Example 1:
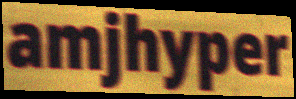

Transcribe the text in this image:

amjhyper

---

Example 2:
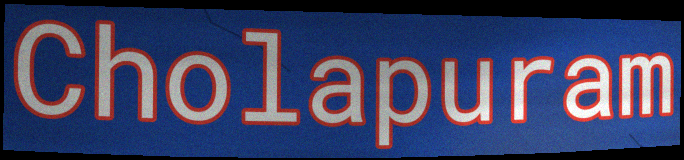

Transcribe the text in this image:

Cholapuram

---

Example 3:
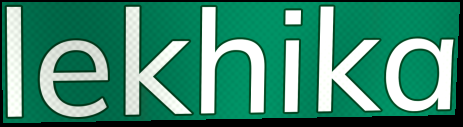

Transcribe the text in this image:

lekhika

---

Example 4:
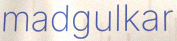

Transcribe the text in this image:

madgulkar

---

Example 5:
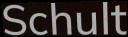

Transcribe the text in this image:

Schult